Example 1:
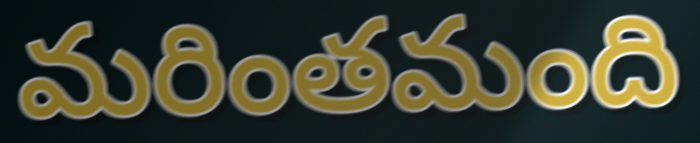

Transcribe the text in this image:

మరింతమంది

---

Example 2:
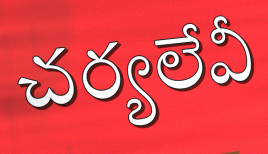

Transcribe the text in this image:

చర్యలేవీ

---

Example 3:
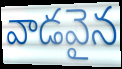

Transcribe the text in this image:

వాడవైన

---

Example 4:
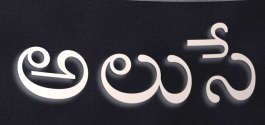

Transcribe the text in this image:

అలుసే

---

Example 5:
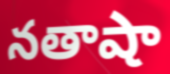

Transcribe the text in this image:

నతాషా